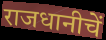
राजधानीचें